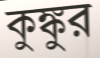
কুঙ্কুর